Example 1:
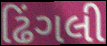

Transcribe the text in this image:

ઢિંગલી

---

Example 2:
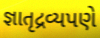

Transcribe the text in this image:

જ્ઞાતૃદ્રવ્યપણે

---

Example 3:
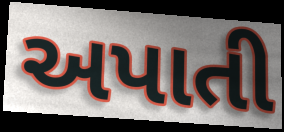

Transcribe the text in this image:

અપાતી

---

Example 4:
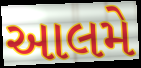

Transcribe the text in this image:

આલમે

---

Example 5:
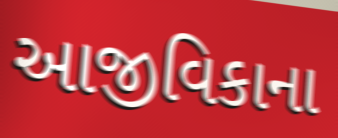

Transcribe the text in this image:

આજીવિકાના